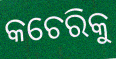
କଚେରିକୁ